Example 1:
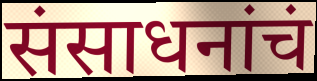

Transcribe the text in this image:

संसाधनांचं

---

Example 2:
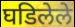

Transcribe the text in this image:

घडिलेले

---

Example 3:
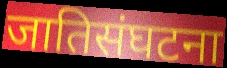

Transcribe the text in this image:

जातिसंघटना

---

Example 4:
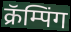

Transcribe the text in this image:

क्रॅम्पिंग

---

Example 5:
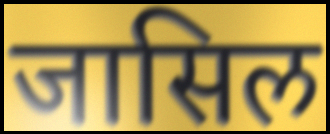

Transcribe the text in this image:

जासिल